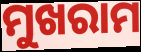
ମୁଖରାମ